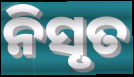
ନିସୃତ